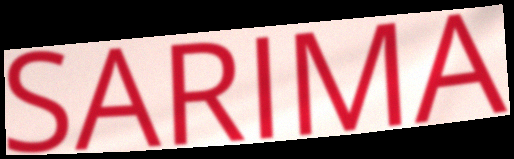
SARIMA